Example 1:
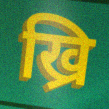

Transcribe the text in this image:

ख्रि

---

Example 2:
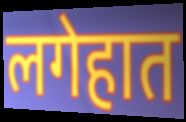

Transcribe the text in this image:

लगेहात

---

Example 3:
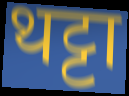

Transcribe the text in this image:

थट्टा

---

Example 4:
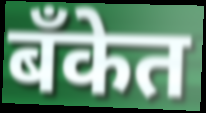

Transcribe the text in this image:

बॅंकेत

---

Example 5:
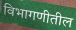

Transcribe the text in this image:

विभागणीतील